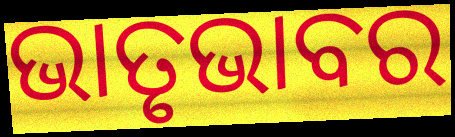
ଭାତୃଭାବର